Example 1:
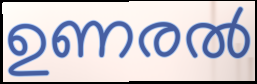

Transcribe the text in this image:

ഉണരൽ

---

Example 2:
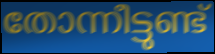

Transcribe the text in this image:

തോന്നീട്ടുണ്ട്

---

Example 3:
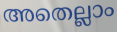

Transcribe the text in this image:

അതെല്ലാം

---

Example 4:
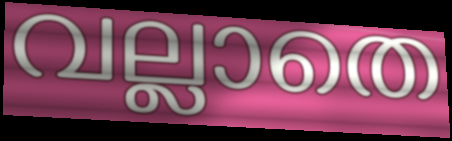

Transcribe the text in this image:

വല്ലാതെ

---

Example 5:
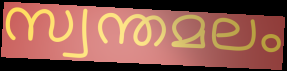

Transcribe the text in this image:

സ്വന്തമലം